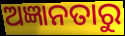
ଅଜ୍ଞାନତାରୁ